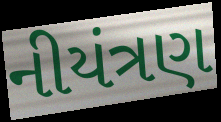
નીયંત્રણ